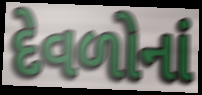
દેવળોનાં